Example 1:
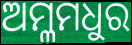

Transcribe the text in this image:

ଅମ୍ଳମଧୁର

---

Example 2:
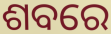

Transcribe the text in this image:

ଶବରେ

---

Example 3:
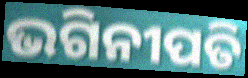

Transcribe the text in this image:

ଭଗିନୀପତି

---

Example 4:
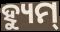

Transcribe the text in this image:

ହ୍ୟୁମ୍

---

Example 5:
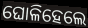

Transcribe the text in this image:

ଘୋଳିହେଲେ